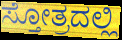
ಸ್ತೋತ್ರದಲ್ಲಿ